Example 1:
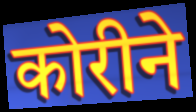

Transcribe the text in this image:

कोरीने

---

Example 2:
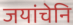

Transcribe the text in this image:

जयांचेनि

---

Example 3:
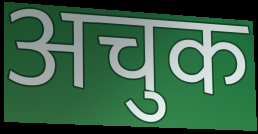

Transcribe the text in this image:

अचुक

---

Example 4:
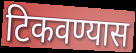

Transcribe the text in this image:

टिकवण्यास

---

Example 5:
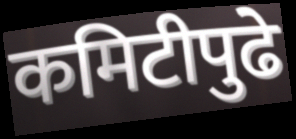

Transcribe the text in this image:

कमिटीपुढे